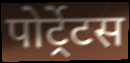
पोर्ट्रेटस